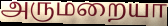
அருமறையா